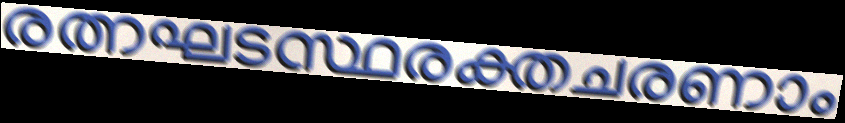
രത്നഘടസ്ഥരക്തചരണാം